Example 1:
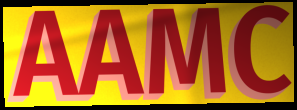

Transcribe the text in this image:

AAMC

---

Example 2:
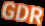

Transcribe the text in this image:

GDR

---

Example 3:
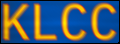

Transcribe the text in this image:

KLCC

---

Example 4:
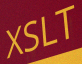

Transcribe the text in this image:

XSLT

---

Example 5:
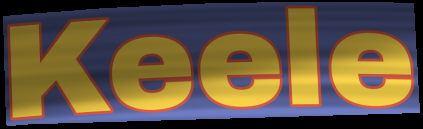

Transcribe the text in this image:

Keele